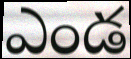
ఎండ